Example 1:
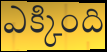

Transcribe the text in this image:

ఎక్కింది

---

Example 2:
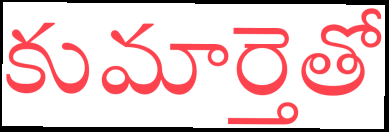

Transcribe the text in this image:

కుమార్తెతో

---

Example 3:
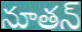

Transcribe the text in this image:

నూతన్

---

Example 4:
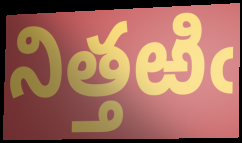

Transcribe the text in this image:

నిత్తఱిఁ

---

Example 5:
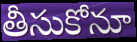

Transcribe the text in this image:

తీసుకోనూ